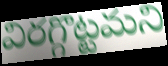
విరగ్గొట్టమని